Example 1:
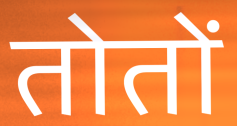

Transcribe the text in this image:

तोतों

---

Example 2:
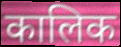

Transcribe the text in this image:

कालिक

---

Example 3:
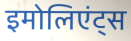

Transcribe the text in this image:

इमोलिएंट्स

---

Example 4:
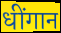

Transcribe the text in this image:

धींगान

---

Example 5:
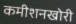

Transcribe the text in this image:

कमीशनखोरी